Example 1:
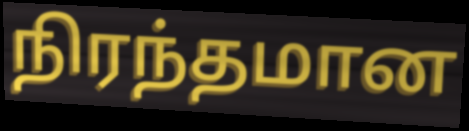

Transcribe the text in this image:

நிரந்தமான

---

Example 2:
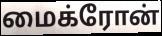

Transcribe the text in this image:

மைக்ரோன்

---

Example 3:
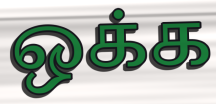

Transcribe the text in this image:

ஒக்க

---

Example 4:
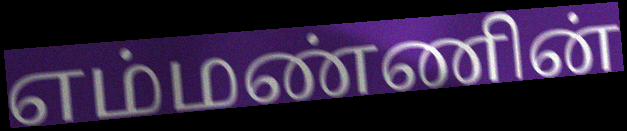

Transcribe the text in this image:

எம்மண்ணின்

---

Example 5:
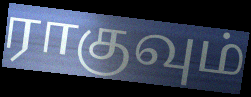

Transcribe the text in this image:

ராகுவும்